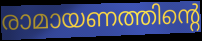
രാമായണത്തിന്റെ